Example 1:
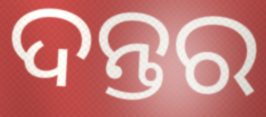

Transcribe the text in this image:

ଦନ୍ତର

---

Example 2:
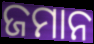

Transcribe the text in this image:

ଜମାନ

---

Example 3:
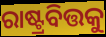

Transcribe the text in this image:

ରାଷ୍ଟ୍ରବିତ୍ତକୁ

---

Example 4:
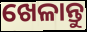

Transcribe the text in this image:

ଖେଳାନ୍ତୁ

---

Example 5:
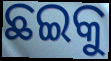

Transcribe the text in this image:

ଛଇକୁ